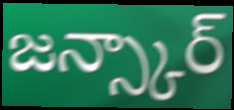
జన్స్కార్